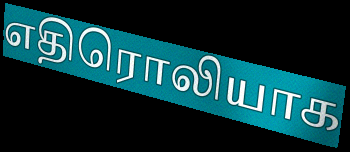
எதிரொலியாக